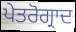
ਪੇਤਰੋਗ੍ਰਾਦ